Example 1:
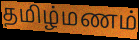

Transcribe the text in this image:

தமிழ்மணம்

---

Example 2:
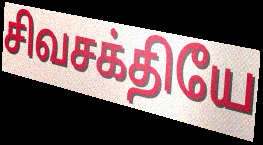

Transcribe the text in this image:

சிவசக்தியே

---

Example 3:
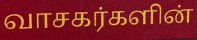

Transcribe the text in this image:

வாசகர்களின்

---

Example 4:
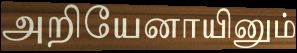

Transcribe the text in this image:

அறியேனாயினும்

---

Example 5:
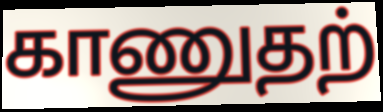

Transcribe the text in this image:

காணுதற்